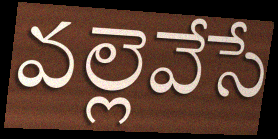
వల్లెవేసే